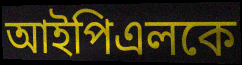
আইপিএলকে